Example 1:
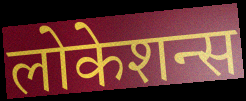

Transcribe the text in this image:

लोकेशन्स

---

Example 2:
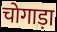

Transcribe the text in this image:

चोगाड़ा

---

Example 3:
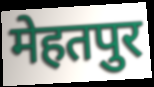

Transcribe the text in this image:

मेहतपुर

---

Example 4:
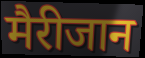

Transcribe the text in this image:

मैरीजान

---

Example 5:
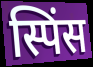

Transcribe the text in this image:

स्पिंस